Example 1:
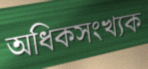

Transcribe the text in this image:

অধিকসংখ্যক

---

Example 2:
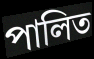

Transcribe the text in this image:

পালিত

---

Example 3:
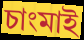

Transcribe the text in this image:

চাংমাই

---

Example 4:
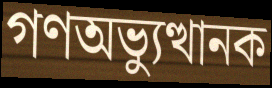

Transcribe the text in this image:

গণঅভ্যুত্থানক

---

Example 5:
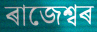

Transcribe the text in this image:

ৰাজেশ্বৰ